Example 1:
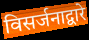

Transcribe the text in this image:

विसर्जनाद्वारे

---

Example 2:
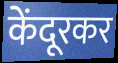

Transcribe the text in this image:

केंदूरकर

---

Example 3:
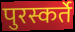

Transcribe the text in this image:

पुरस्कर्ते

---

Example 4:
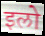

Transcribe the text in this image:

इलो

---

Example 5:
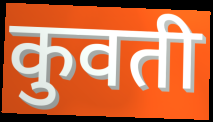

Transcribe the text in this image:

कुवती